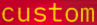
custom